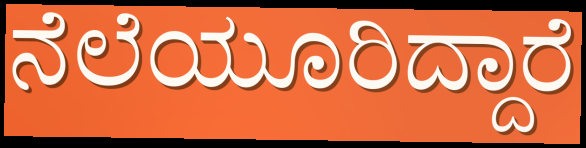
ನೆಲೆಯೂರಿದ್ದಾರೆ